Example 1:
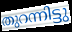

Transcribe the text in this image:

തുറന്നിട്ടു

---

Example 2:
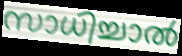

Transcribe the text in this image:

സാധിച്ചാൽ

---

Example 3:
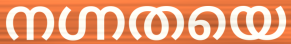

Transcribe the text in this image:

നഗ്നതയെ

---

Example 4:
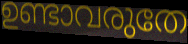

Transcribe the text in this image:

ഉണ്ടാവരുതേ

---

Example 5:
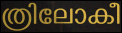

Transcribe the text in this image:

ത്രിലോകീ